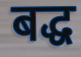
बद्ध